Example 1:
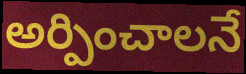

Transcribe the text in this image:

అర్పించాలనే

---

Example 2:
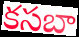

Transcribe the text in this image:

కసబా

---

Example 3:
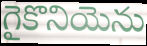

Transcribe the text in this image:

గైకొనియెను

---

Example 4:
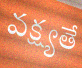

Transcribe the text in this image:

వక్ష్యతే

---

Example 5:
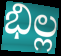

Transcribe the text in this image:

భిల్ల